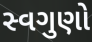
સ્વગુણો